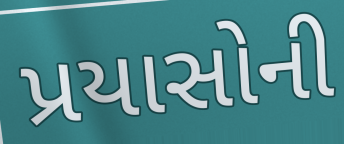
પ્રયાસોની